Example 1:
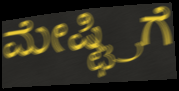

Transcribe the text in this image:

ಮೇಷ್ಟ್ರಿಗೆ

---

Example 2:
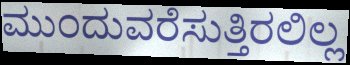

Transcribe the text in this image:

ಮುಂದುವರೆಸುತ್ತಿರಲಿಲ್ಲ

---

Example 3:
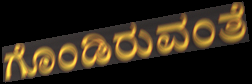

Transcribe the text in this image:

ಗೊಂಡಿರುವಂತೆ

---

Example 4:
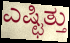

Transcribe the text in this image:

ಎಷ್ಟಿತ್ತು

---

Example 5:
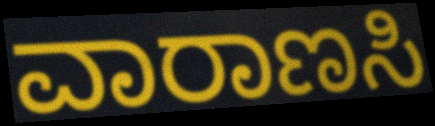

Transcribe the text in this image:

ವಾರಾಣಸಿ